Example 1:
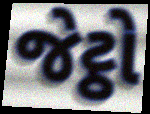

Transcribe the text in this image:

જેટ્ઠો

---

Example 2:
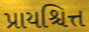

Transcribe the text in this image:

પ્રાયશ્ચિત્ત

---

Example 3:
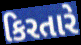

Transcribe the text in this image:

કિરતારે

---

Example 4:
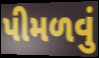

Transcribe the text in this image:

પીમળવું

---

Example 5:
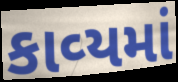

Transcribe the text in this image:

કાવ્‍યમાં